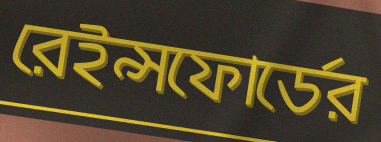
রেইন্সফোর্ডের